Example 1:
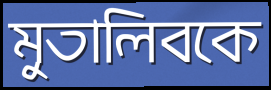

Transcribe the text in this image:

মুতালিবকে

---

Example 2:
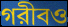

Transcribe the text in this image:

গরীবও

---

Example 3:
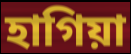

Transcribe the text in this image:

হাগিয়া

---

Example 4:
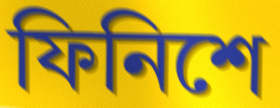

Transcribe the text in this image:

ফিনিশে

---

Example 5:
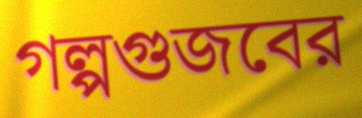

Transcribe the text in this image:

গল্পগুজবের